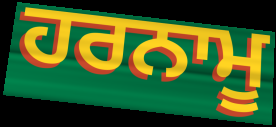
ਹਰਨਾਮੂ